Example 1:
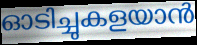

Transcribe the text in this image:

ഓടിച്ചുകളയാൻ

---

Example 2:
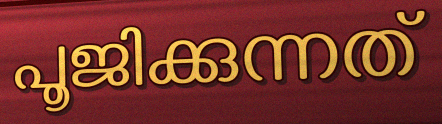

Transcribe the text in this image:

പൂജിക്കുന്നത്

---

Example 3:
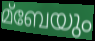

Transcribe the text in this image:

മ്ബേയും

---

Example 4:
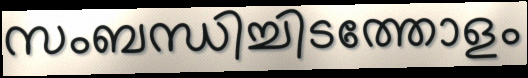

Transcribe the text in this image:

സംബന്ധിച്ചിടത്തോളം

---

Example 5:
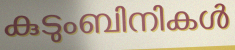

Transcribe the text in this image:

കുടുംബിനികൾ